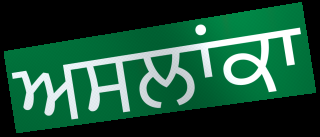
ਅਸਲਾਂਕਾ